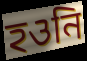
হওনি